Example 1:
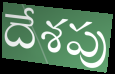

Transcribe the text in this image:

దేశపు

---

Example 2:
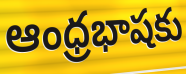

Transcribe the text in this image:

ఆంధ్రభాషకు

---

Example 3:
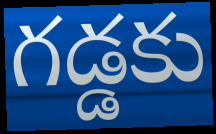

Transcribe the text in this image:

గడ్డకు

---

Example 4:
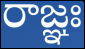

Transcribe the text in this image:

రాజ్ఞః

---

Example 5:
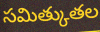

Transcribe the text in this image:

సమిత్కుతల